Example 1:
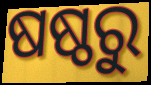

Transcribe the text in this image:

ଷଷ୍ଠରୁ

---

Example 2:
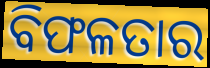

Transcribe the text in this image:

ବିଫଳତାର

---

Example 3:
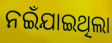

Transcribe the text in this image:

ନଇଁଯାଇଥିଲା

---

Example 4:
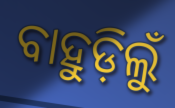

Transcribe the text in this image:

ବାହୁଡ଼ିଲୁଁ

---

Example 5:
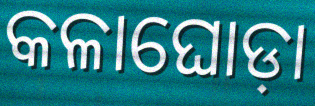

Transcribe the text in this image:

କଳାଘୋଡ଼ା